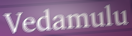
Vedamulu